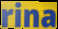
rina